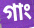
গাং